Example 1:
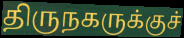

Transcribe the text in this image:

திருநகருக்குச்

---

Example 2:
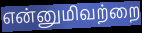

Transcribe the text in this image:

என்னுமிவற்றை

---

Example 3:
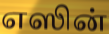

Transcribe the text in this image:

எஸின்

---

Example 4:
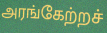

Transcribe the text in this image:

அரங்கேற்றச்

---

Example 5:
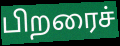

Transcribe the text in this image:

பிறரைச்